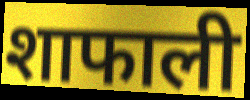
शाफाली